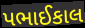
પભાઈકાલ